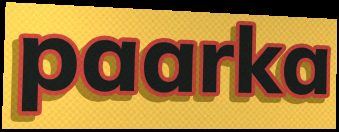
paarka